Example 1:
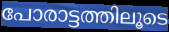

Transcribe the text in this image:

പോരാട്ടത്തിലൂടെ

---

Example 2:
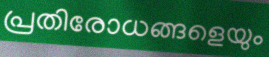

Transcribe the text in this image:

പ്രതിരോധങ്ങളെയും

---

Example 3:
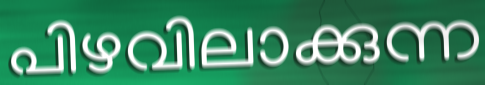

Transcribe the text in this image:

പിഴവിലാക്കുന്ന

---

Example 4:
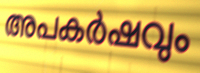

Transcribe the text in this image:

അപകർഷവും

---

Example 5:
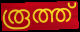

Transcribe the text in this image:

രൂത്ത്